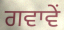
ਗਵਾਵੇਂ